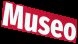
Museo